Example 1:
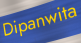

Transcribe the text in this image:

Dipanwita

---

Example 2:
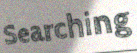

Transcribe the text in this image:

Searching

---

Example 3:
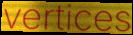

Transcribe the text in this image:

vertices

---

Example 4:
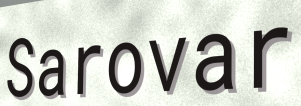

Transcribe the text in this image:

Sarovar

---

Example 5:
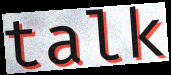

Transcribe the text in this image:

talk